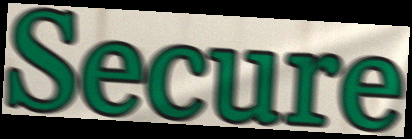
Secure